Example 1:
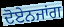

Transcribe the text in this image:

ਦੋਏਨਜਾਂਗ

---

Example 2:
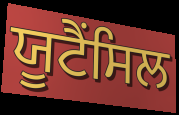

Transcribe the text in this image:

ਯੂਟੈਂਸਿਲ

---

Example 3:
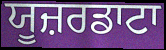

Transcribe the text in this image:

ਯੂਜ਼ਰਡਾਟਾ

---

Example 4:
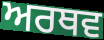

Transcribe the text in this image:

ਅਰਥਵ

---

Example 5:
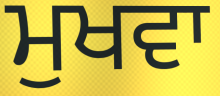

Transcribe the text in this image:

ਮੁਖਵਾ